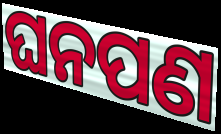
ଘନପଣ